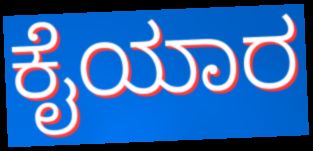
ಕೈಯಾರ